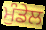
ਮੁੰਡੇਲ